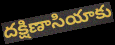
దక్షిణాసియాకు